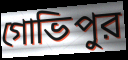
গোভিপুর